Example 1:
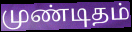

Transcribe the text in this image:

முண்டிதம்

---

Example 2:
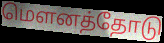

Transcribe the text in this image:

மௌனத்தோடு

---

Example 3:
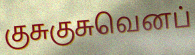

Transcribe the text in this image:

குசுகுசுவெனப்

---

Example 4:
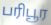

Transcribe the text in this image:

பரிபூர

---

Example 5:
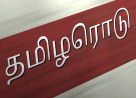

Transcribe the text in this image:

தமிழரொடு